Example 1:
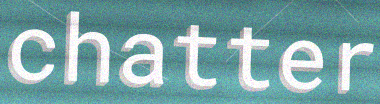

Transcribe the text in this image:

chatter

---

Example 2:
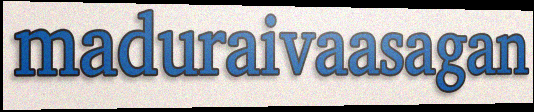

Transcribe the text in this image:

maduraivaasagan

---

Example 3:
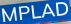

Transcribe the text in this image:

MPLAD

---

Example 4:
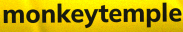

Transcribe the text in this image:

monkeytemple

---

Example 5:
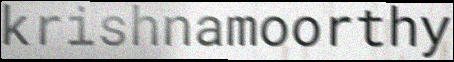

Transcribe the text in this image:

krishnamoorthy